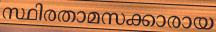
സ്ഥിരതാമസക്കാരായ